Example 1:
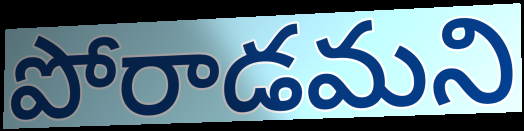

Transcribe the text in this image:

పోరాడమని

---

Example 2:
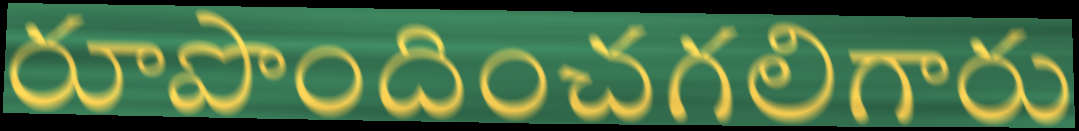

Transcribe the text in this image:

రూపొందించగలిగారు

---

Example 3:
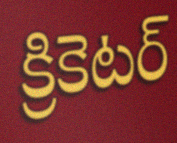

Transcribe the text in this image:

క్రికెటర్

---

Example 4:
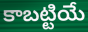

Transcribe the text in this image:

కాబట్టియే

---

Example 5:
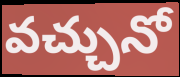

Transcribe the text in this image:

వచ్చునో